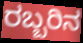
ರಬ್ಬರಿನ